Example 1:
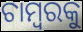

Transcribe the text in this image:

ଚାମ୍ବରକୁ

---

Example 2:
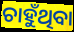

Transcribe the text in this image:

ଚାହୁଁଥିବା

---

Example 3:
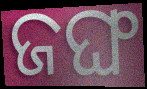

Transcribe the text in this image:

ଜଙ୍ଘ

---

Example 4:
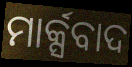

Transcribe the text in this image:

ମାର୍କ୍ସବାଦ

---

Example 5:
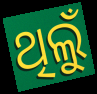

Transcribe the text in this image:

ଥିଲୁଁ